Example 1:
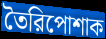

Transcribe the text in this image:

তৈরিপোশাক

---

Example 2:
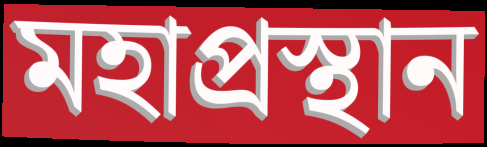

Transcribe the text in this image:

মহাপ্রস্থান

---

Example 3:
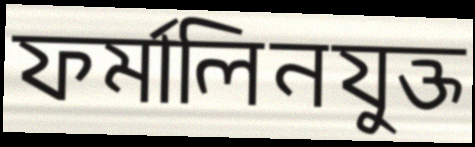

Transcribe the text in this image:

ফর্মালিনযুক্ত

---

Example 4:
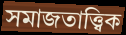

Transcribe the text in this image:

সমাজতাত্ত্বিক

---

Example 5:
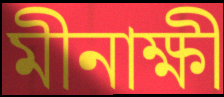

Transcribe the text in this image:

মীনাক্ষী